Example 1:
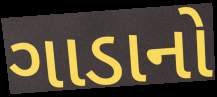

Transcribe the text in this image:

ગાડાનો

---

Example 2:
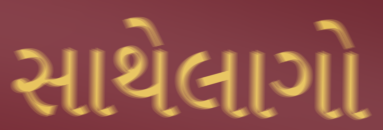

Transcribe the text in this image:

સાથેલાગો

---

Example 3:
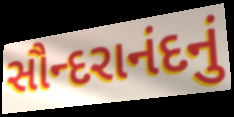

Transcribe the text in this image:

સૌન્દરાનંદનું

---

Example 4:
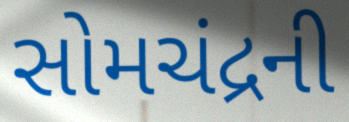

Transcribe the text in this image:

સોમચંદ્રની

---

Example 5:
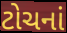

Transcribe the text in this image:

ટોચનાં